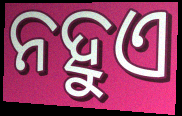
ନହୁଏ